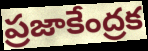
ప్రజాకేంద్రక